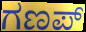
ಗಣಪ್